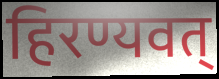
हिरण्यवत्